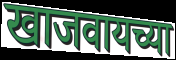
खाजवायच्या